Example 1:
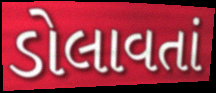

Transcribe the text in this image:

ડોલાવતાં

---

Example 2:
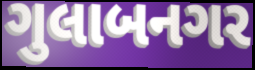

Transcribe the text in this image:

ગુલાબનગર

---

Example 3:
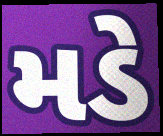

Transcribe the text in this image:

મડે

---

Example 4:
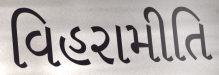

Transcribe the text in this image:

વિહરામીતિ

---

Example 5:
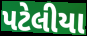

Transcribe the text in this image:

પટેલીયા